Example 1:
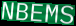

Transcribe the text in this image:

NBEMS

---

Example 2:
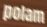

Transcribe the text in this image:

polam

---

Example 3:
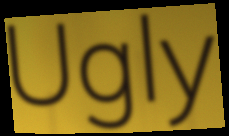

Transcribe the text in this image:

Ugly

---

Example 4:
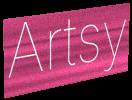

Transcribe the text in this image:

Artsy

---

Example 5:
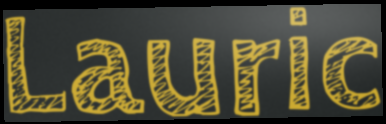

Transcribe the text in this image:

Lauric